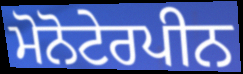
ਮੋਨੋਟੇਰਪੀਨ